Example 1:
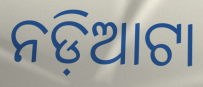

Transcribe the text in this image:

ନଡ଼ିଆଟା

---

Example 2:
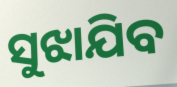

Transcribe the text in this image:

ସୁଝାଯିବ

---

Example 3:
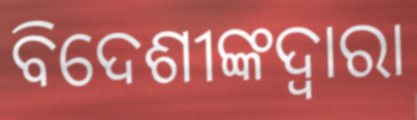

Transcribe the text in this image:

ବିଦେଶୀଙ୍କଦ୍ୱାରା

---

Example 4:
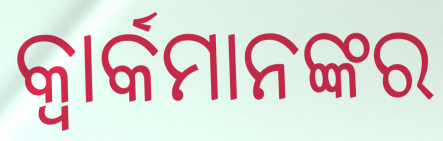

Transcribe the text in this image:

କ୍ୱାର୍କମାନଙ୍କର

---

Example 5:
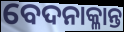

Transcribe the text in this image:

ବେଦନାକ୍ଳାନ୍ତ